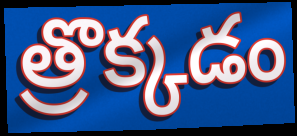
త్రొక్కడం